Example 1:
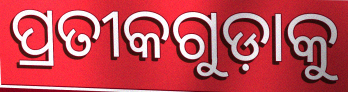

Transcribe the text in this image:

ପ୍ରତୀକଗୁଡ଼ାକୁ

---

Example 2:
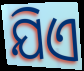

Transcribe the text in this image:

ଯିଏ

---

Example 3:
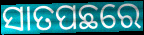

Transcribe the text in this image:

ସାତପଛରେ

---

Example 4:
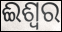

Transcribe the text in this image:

ଈଶ୍ବର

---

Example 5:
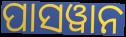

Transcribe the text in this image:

ପାସୱାନ